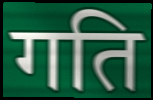
गति